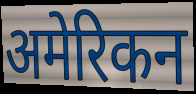
अमेरिकन